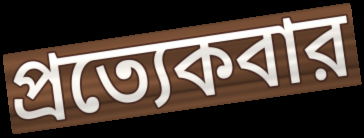
প্রত্যেকবার